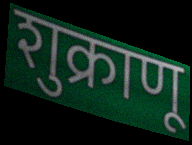
शुक्राणू